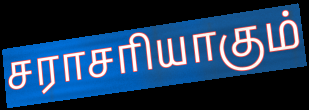
சராசரியாகும்